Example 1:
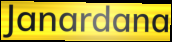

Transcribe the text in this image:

Janardana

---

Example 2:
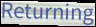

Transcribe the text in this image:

Returning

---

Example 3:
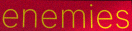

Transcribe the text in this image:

enemies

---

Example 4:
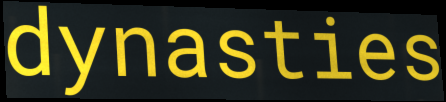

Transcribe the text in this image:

dynasties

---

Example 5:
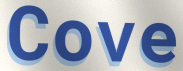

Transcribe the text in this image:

Cove